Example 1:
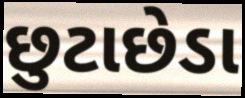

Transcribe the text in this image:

છુટાછેડા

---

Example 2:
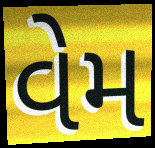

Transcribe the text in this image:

વેમ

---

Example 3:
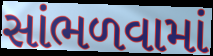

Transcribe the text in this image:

સાંભળવામાં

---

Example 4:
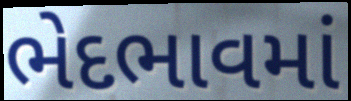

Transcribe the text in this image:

ભેદભાવમાં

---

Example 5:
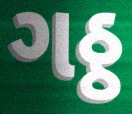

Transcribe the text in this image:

ગઠ્ઠ